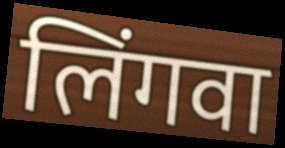
लिंगवा